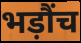
भड़ौंच